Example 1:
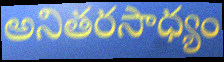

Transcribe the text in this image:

అనితరసాధ్యం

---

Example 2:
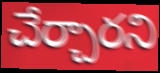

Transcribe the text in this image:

చేర్చారని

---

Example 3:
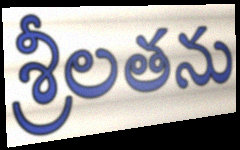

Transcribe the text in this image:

శ్రీలతను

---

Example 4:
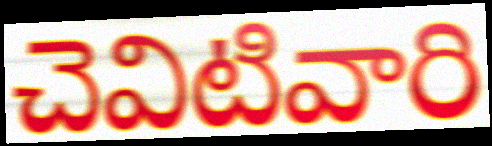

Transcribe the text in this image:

చెవిటివారి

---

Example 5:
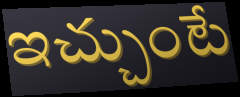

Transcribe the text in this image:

ఇచ్చుంటే